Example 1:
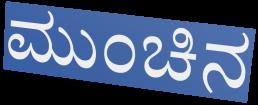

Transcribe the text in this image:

ಮುಂಚಿನ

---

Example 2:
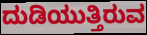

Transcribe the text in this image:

ದುಡಿಯುತ್ತಿರುವ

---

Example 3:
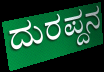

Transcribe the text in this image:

ದುರಪ್ದನ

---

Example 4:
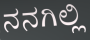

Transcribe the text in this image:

ನನಗಿಲ್ಲಿ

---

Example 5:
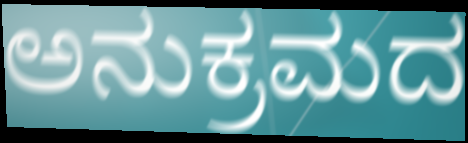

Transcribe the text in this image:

ಅನುಕ್ರಮದ